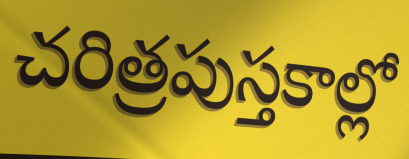
చరిత్రపుస్తకాల్లో